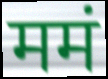
ममं